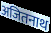
अजितनाथ